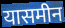
यासमीन